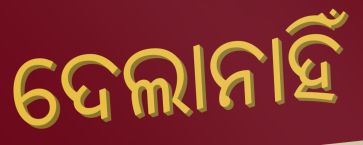
ଦେଲାନାହିଁ